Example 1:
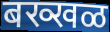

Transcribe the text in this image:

बख्खळ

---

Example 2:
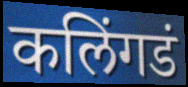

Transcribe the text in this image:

कलिंगडं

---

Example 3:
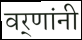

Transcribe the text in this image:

वर्णांनी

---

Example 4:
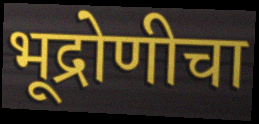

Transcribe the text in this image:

भूद्रोणीचा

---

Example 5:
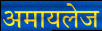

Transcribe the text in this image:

अमायलेज